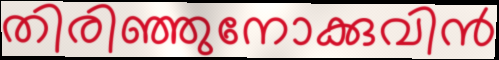
തിരിഞ്ഞുനോക്കുവിൻ